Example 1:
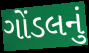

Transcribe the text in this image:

ગોંડલનું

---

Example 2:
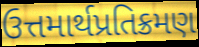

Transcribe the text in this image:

ઉત્તમાર્થપ્રતિક્રમણ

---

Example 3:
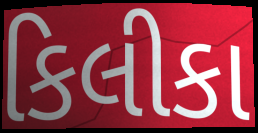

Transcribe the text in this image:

કિલીકા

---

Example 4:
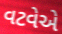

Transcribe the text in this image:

વટવેએ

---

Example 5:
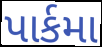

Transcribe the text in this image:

પાર્કમા